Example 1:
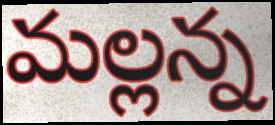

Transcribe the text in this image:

మల్లన్న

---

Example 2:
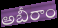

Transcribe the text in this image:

అబీరాం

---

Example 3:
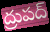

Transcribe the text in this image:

ద్రుపద్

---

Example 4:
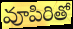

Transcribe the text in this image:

వూపిరితో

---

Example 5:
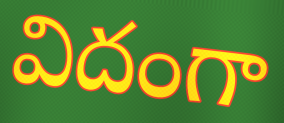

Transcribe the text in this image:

విదంగా